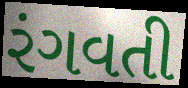
રંગવતી